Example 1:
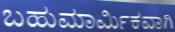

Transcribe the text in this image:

ಬಹುಮಾರ್ಮಿಕವಾಗಿ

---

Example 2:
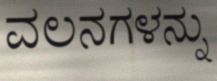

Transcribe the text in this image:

ವಲನಗಳನ್ನು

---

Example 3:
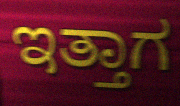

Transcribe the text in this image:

ಇತ್ತಾಗ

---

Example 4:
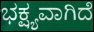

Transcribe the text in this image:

ಭಕ್ಷ್ಯವಾಗಿದೆ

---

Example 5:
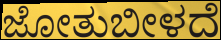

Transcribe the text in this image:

ಜೋತುಬೀಳದೆ